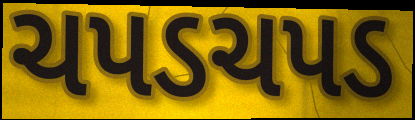
ચપડચપડ